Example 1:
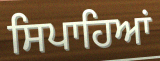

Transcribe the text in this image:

ਸਿਪਾਹਿਆਂ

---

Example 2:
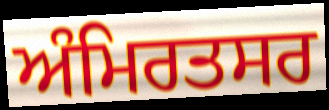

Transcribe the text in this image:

ਅੰਮਿਰਤਸਰ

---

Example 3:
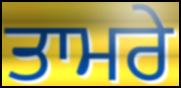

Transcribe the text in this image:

ਤਾਮਰੇ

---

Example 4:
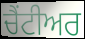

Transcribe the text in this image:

ਚੈਂਟੀਅਰ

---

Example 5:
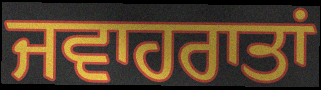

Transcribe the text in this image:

ਜਵਾਹਰਾਤਾਂ